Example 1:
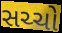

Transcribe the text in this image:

સચ્ચો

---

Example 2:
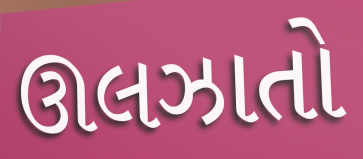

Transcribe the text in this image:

ઊલઝાતો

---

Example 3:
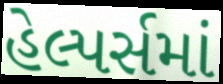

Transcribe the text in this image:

હેલ્પર્સમાં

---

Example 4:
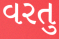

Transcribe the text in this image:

વરતુ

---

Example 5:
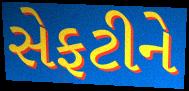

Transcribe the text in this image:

સેફટીને